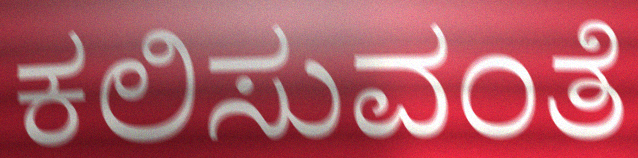
ಕಲಿಸುವಂತೆ